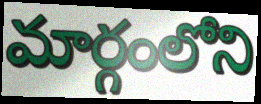
మార్గంలోని